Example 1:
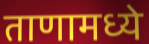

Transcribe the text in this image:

ताणामध्ये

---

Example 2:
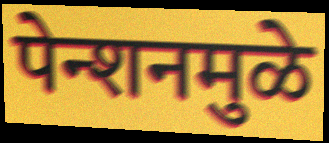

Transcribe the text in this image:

पेन्शनमुळे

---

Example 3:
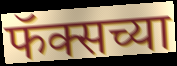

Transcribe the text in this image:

फॅक्सच्या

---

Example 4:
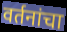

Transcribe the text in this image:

वर्तनांचा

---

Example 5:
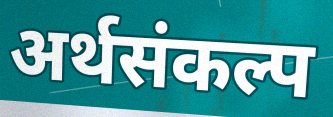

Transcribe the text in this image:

अर्थसंकल्प